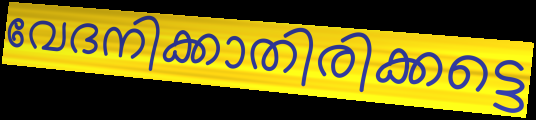
വേദനിക്കാതിരിക്കട്ടെ